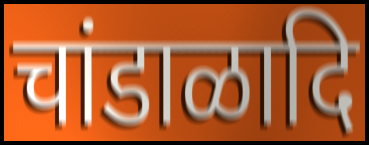
चांडाळादि